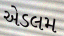
એડલમ